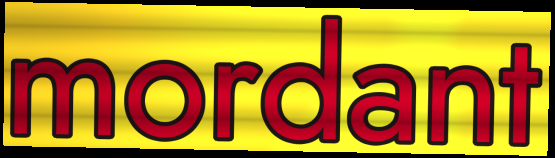
mordant